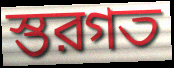
স্তরগত